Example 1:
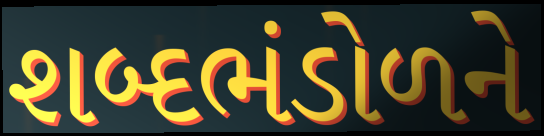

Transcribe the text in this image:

શબ્દભંડોળને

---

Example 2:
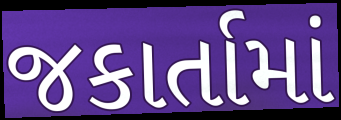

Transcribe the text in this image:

જકાર્તામાં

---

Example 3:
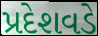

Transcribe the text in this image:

પ્રદેશવડે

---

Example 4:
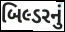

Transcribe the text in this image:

બિલ્ડરનું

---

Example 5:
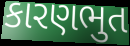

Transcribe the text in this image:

કારણભુત